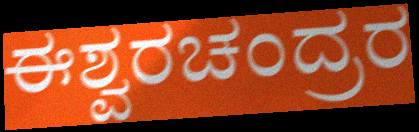
ಈಶ್ವರಚಂದ್ರರ